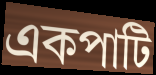
একপাটি